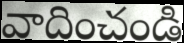
వాదించండి